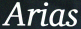
Arias